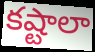
కష్టాలా